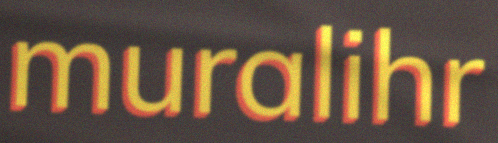
muralihr